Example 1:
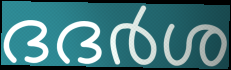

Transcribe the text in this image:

ദദർശ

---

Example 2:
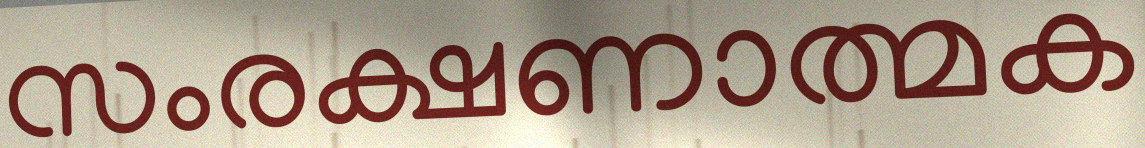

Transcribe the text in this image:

സംരക്ഷണാത്മക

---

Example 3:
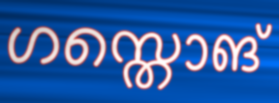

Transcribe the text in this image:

ഗസ്തൊങ്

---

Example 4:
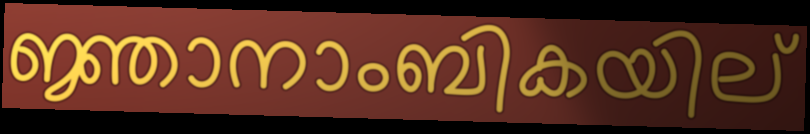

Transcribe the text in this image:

ജ്ഞാനാംബികയില്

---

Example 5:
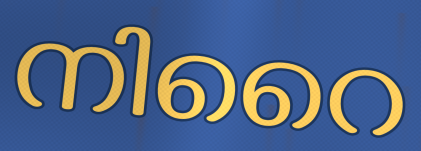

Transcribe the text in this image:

നിറൈ